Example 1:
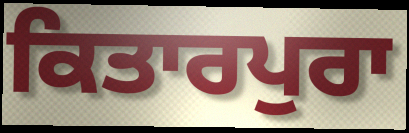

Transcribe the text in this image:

ਕਿਤਾਰਪੁਰਾ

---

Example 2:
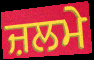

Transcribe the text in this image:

ਜ਼ਲਮੇ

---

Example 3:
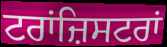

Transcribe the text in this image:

ਟਰਾਂਜ਼ਿਸਟਰਾਂ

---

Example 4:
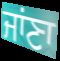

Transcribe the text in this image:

ਜਾਂਣਾ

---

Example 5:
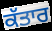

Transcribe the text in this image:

ਕੱਤਾਰ